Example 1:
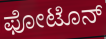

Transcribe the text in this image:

ಫೋಟೊನ್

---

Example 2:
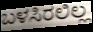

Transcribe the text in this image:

ಬಳಸಿರಲಿಲ್ಲ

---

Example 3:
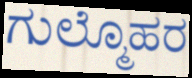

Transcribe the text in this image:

ಗುಲ್ಮೊಹರ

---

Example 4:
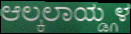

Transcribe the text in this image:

ಆಲ್ಕಲಾಯ್ಡ್ಗಳ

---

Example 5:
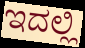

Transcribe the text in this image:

ಇದಲ್ಲಿ